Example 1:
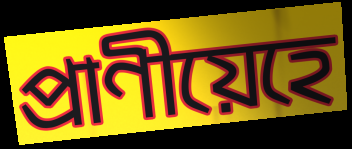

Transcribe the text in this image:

প্ৰাণীয়েহে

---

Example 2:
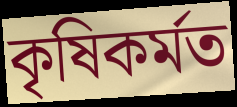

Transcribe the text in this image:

কৃষিকৰ্মত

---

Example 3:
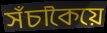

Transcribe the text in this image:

সঁচাকৈয়ে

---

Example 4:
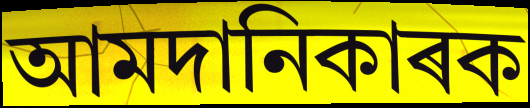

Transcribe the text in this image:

আমদানিকাৰক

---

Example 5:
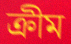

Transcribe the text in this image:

ক্ৰীম